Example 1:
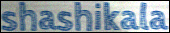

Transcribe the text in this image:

shashikala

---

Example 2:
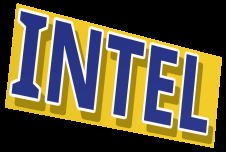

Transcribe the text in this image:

INTEL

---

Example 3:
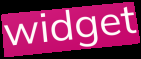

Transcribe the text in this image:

widget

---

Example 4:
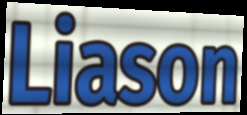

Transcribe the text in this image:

Liason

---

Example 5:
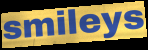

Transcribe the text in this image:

smileys